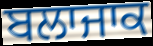
ਬਲਾਜਾਕ